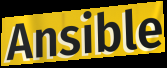
Ansible